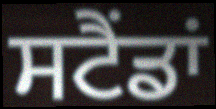
ਸਟੈਂਡਾਂ